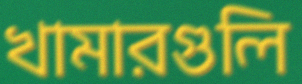
খামারগুলি